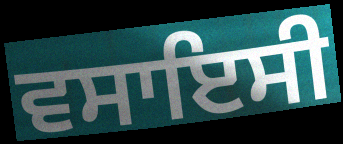
ਵਸਾਇਸੀ